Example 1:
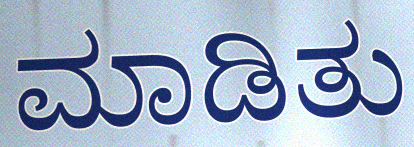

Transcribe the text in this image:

ಮಾಡಿತು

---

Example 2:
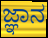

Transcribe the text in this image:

ಜ್ಞಾನ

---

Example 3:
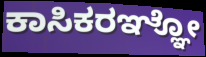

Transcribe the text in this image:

ಕಾಸಿಕರಞ್ಞೋ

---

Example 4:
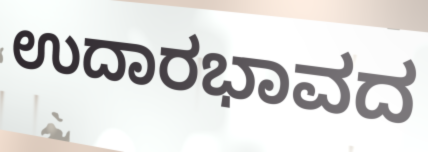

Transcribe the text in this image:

ಉದಾರಭಾವದ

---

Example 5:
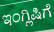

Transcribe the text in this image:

ಇಂಗ್ಲಿಷಿಗೆ